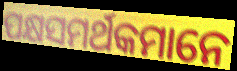
ପକ୍ଷସମର୍ଥକମାନେ